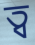
ত্ব